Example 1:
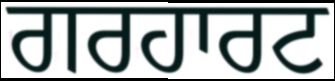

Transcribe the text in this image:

ਗਰਹਾਰਟ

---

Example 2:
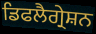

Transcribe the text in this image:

ਡਿਫਲੈਗ੍ਰੇਸ਼ਨ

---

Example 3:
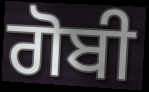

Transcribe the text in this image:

ਗੋਬੀ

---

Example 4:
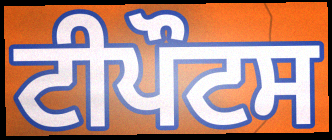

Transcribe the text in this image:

ਟੀਪੌਟਸ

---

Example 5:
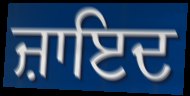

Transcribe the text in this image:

ਜ਼ਾਇਦ